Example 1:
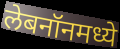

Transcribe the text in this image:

लेबनॉनमध्ये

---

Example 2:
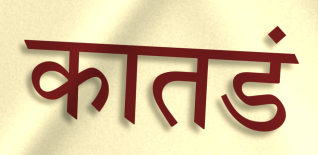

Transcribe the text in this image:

कातडं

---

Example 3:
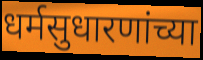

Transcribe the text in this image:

धर्मसुधारणांच्या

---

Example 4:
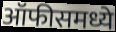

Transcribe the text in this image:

ऑफीसमध्ये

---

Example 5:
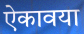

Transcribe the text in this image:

ऐकावया